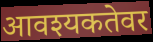
आवश्यकतेवर